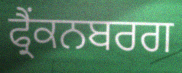
ਫ੍ਰੈਂਕਨਬਰਗ